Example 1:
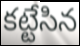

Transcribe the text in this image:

కట్టేసిన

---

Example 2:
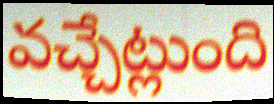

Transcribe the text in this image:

వచ్చేట్లుంది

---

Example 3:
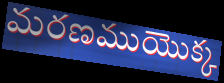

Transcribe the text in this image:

మరణముయొక్క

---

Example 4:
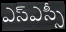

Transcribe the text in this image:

ఎస్ఎస్సీ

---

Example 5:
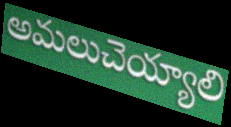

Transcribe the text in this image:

అమలుచెయ్యాలి